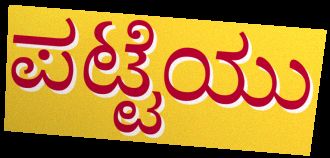
ಪಟ್ಟೆಯು